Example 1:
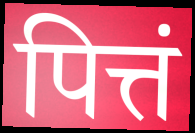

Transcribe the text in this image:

पित्तं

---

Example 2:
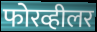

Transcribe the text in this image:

फोरव्हीलर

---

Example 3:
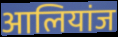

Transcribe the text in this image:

आलियांज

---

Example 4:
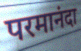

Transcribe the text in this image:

परमानंदा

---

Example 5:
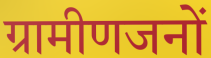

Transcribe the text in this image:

ग्रामीणजनों